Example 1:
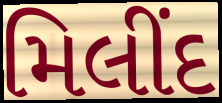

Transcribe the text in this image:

મિલીંદ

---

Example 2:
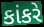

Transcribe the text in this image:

કાંકરે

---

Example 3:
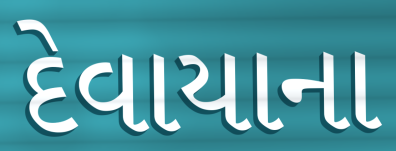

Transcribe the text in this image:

દેવાયાના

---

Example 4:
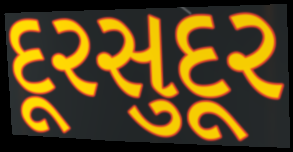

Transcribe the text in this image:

દૂરસુદૂર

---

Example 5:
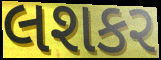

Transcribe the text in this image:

લશકર